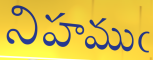
నిహముఁ